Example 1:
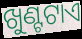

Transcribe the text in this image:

ଖୁଣ୍ଟଟାଏ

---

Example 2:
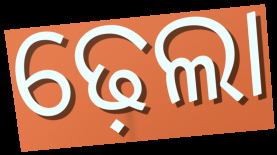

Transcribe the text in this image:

ଢ଼େଲା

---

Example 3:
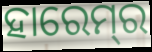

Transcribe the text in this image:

ହାରେମ୍‍ର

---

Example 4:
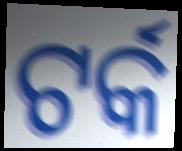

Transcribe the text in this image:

ଟର୍କ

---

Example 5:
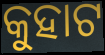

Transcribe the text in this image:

କୁହାଟ